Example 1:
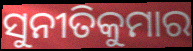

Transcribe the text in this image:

ସୁନୀତିକୁମାର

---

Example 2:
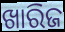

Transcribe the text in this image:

ଖାରିଜ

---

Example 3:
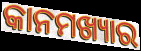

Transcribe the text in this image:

କାନମଖ୍ୟାର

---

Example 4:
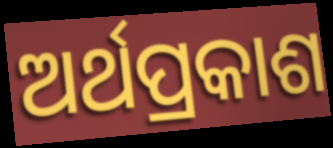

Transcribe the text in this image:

ଅର୍ଥପ୍ରକାଶ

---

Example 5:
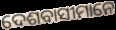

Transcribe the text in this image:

ଦେଶବାସୀମାନେ